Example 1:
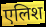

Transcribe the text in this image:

एलिश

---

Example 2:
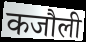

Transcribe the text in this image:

कजौली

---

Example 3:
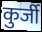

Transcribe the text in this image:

कुर्जी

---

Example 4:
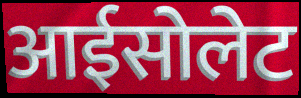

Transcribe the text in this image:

आईसोलेट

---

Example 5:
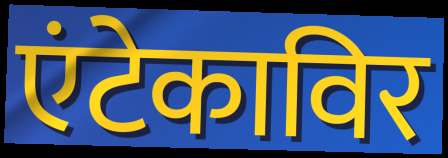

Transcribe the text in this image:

एंटेकाविर